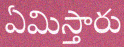
ఏమిస్తారు